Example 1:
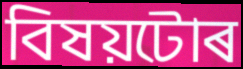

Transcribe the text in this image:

বিষয়টোৰ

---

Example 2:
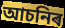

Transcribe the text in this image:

আচনিৰ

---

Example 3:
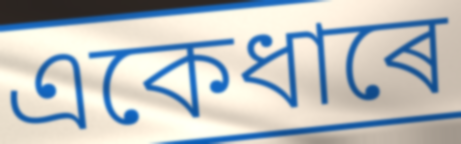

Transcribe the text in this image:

একেধাৰে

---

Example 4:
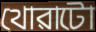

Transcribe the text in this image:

থোৱাটো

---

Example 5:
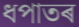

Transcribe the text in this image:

ধপাতৰ